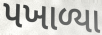
પખાળ્યા